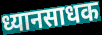
ध्यानसाधक